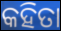
କହିତା